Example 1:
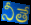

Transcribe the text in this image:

నీతే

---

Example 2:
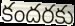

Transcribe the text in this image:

కందరకు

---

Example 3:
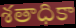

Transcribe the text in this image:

శతాధికా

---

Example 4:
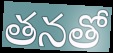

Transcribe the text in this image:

తనతో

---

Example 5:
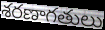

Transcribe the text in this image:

శరణాగతులు